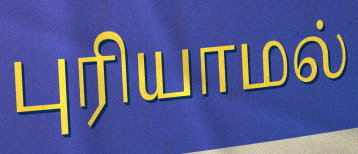
புரியாமல்